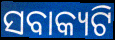
ସବାକ୍ୟଟି